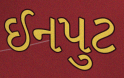
ઈનપુટ